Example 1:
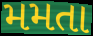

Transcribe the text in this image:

મમતા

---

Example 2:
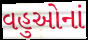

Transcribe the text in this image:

વહુઓનાં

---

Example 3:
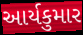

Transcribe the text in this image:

આર્યકુમાર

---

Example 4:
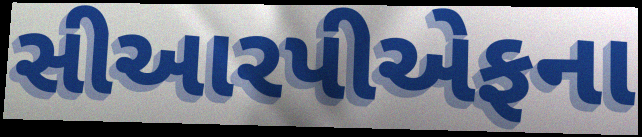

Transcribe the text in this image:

સીઆરપીએફના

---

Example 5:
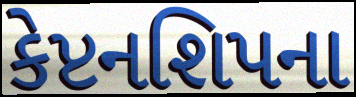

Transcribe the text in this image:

કેપ્ટનશિપના